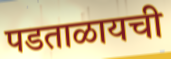
पडताळायची